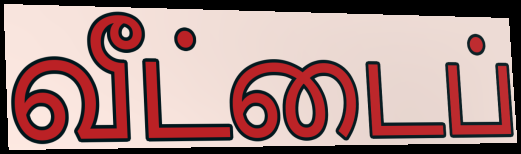
வீட்டைப்